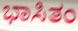
ಭಾಸಿತಂ